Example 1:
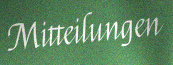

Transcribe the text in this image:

Mitteilungen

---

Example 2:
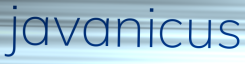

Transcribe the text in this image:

javanicus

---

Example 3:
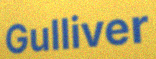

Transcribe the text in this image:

Gulliver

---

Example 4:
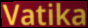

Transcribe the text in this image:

Vatika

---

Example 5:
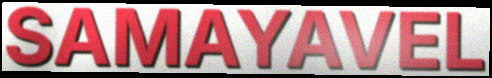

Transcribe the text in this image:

SAMAYAVEL